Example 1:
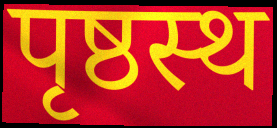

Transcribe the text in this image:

पृष्ठस्थ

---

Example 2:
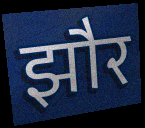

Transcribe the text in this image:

झौर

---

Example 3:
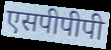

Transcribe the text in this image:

एसपीपीपी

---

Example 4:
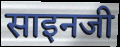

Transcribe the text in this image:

साइनजी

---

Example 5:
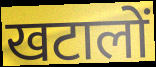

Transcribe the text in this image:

खटालों